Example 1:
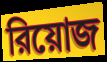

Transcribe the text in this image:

রিয়োজ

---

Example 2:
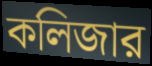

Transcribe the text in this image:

কলিজার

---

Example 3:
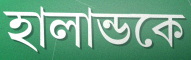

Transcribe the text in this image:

হালান্ডকে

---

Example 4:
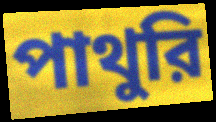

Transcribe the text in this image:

পাথুরি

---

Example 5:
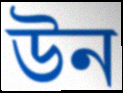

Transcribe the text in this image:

উন